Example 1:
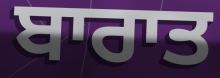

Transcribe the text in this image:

ਬਾਰਾਤ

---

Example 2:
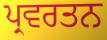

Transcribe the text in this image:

ਪ੍ਰਵਰਤਨ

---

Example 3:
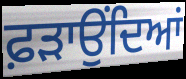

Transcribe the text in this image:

ਫ਼ੜਾਉਂਦਿਆਂ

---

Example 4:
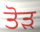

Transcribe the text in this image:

ਤੋਡ਼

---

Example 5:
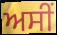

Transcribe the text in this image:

ਅਸੀੰ